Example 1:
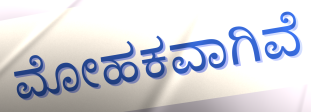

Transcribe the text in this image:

ಮೋಹಕವಾಗಿವೆ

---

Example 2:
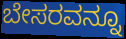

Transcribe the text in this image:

ಬೇಸರವನ್ನೂ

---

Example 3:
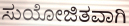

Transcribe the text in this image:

ಸುಯೋಜಿತವಾಗಿ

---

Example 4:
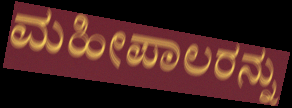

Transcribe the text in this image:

ಮಹೀಪಾಲರನ್ನು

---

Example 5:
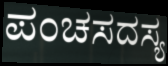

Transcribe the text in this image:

ಪಂಚಸದಸ್ಯ